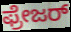
ಫ್ರೇಜರ್